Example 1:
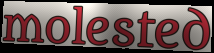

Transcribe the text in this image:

molested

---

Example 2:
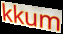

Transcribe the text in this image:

kkum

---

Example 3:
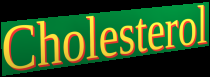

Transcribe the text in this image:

Cholesterol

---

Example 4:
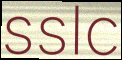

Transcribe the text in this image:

sslc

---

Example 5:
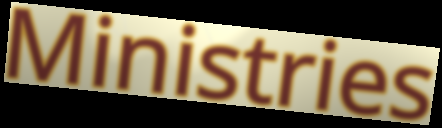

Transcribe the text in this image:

Ministries